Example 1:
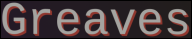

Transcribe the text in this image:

Greaves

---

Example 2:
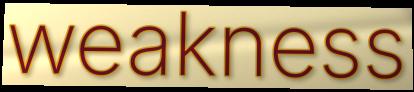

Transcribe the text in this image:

weakness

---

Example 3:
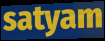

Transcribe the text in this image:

satyam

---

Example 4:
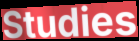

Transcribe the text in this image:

Studies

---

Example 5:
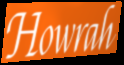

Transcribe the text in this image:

Howrah